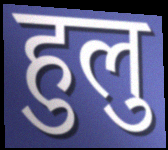
हुलु